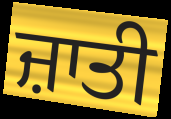
ਜ਼ਾਤੀ